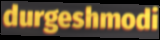
durgeshmodi